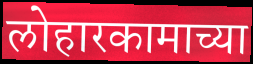
लोहारकामाच्या